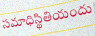
సమాధిస్థితియందు